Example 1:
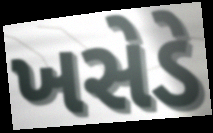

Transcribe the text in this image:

ખસેડે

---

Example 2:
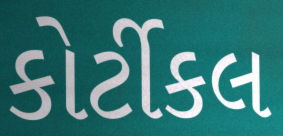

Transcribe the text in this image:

કોર્ટીકલ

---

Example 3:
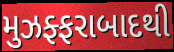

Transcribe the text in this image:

મુઝફ્ફરાબાદથી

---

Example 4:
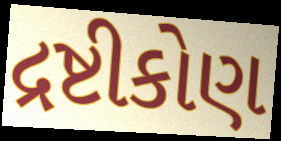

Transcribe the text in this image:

દ્રષ્ટીકોણ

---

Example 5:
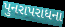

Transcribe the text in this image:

પુનરાપરાધના